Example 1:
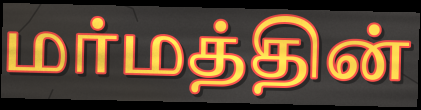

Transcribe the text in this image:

மர்மத்தின்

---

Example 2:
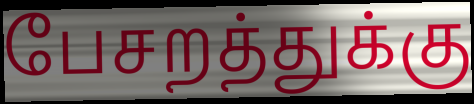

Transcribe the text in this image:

பேசறத்துக்கு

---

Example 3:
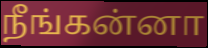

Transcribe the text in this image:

நீங்கன்னா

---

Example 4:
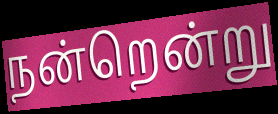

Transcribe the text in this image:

நன்றென்று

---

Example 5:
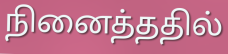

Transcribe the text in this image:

நினைத்ததில்